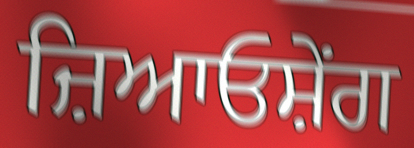
ਜ਼ਿਆਓਸ਼ੇਂਗ